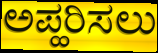
ಅಪ್ಹರಿಸಲು